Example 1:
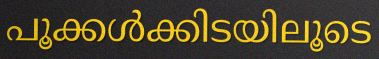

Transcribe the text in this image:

പൂക്കൾക്കിടയിലൂടെ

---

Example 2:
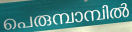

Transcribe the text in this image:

പെരുമ്പാമ്പിൽ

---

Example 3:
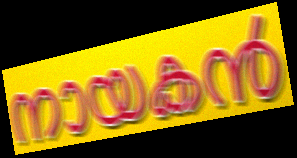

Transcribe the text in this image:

നായകൻ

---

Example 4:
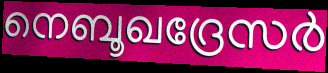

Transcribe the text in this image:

നെബൂഖദ്രേസർ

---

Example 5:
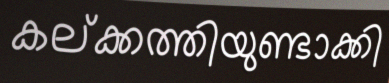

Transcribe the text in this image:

കല്ക്കത്തിയുണ്ടാക്കി